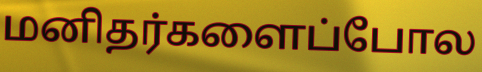
மனிதர்களைப்போல